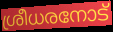
ശ്രീധരനോട്